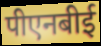
पीएनबीई